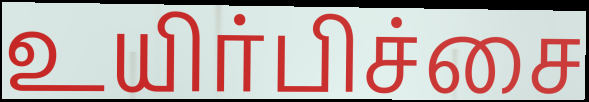
உயிர்பிச்சை